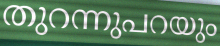
തുറന്നുപറയും